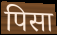
पिसा